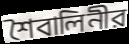
শৈবালিনীর